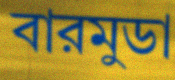
বারমুডা